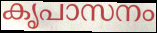
കൃപാസനം